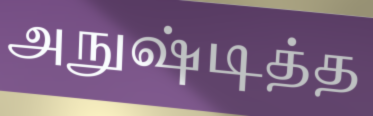
அநுஷ்டித்த